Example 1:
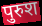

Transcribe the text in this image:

पुरुश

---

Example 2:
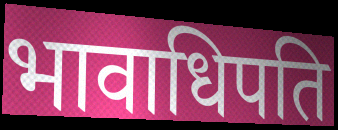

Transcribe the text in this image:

भावाधिपति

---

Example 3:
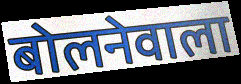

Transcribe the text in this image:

बोलनेवाला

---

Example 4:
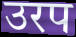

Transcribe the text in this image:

उरप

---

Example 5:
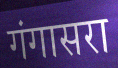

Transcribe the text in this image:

गंगासरा